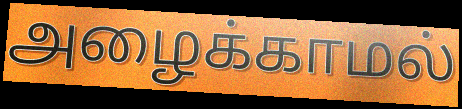
அழைக்காமல்